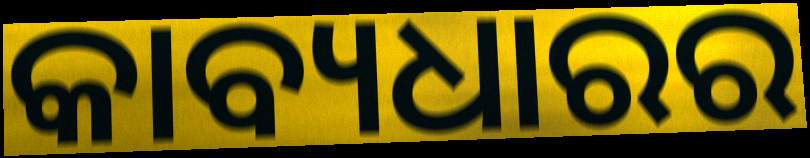
କାବ୍ୟଧାରର